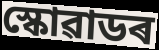
স্কোৱাডৰ